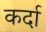
कर्दा